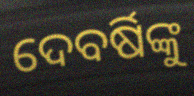
ଦେବର୍ଷିଙ୍କୁ